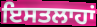
ਇਸਤਲਾਹਾਂ